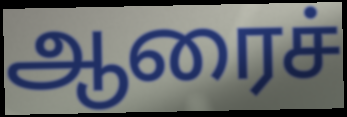
ஆரைச்